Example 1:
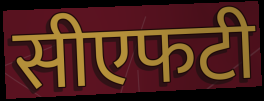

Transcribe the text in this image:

सीएफटी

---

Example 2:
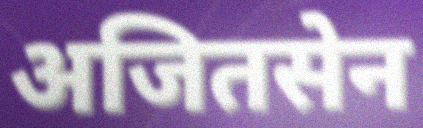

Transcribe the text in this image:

अजितसेन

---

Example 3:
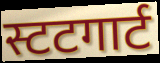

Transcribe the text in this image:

स्टटगार्ट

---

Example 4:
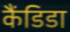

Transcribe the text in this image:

कैंडिडा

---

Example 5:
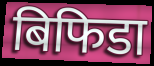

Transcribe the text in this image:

बिफिडा